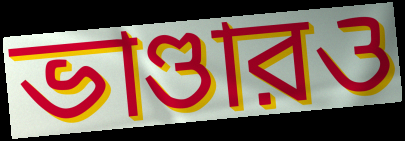
ভাণ্ডারও